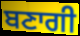
ਬਣਾਗੀ